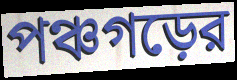
পঞ্চগড়ের